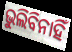
ଭୁଲିବିନାହିଁ